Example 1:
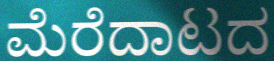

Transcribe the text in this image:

ಮೆರೆದಾಟದ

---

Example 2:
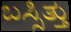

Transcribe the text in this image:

ಬಸ್ಸಿತ್ತು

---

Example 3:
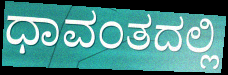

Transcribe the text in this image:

ಧಾವಂತದಲ್ಲಿ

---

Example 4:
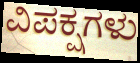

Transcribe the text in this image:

ವಿಪಕ್ಷಗಳು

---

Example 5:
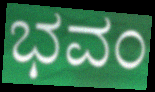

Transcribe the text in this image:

ಭವಂ